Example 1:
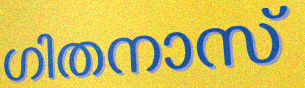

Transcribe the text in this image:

ഗിതനാസ്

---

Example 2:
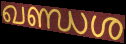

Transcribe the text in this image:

ഖണ്ഡശ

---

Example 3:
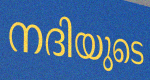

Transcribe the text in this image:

നദിയുടെ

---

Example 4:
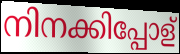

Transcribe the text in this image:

നിനക്കിപ്പോള്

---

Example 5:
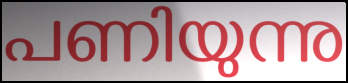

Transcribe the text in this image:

പണിയുന്നു